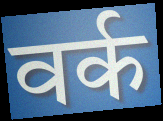
वर्क